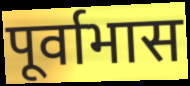
पूर्वाभास